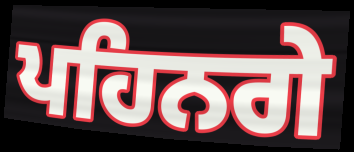
ਪਹਿਨਗੇ